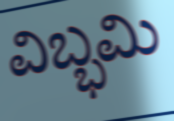
ವಿಬ್ಭಮಿ